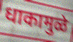
धाकामुळे